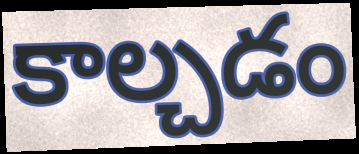
కాల్చడం